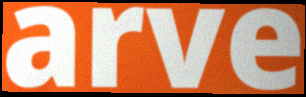
arve